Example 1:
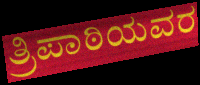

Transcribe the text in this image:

ತ್ರಿಪಾಠಿಯವರ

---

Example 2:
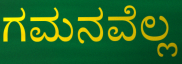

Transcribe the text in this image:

ಗಮನವೆಲ್ಲ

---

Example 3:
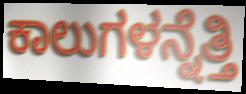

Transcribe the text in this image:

ಕಾಲುಗಳನ್ನೆತ್ತಿ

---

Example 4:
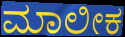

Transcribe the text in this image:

ಮಾಲೀಕ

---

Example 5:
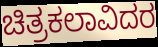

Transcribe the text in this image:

ಚಿತ್ರಕಲಾವಿದರ